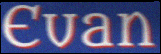
Euan